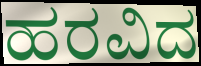
ಹರವಿದ